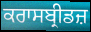
ਕਰਾਸਬ੍ਰੀਡਜ਼